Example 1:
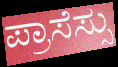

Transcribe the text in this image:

ಪ್ರಾಸೆಸ್ಸು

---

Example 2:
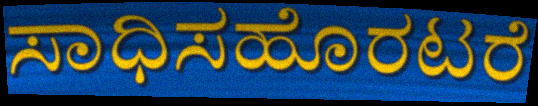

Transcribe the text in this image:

ಸಾಧಿಸಹೊರಟರೆ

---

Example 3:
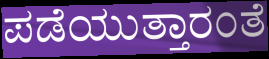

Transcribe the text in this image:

ಪಡೆಯುತ್ತಾರಂತೆ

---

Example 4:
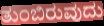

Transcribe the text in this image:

ತುಂಬಿರುವುದು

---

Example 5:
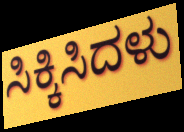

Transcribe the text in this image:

ಸಿಕ್ಕಿಸಿದಳು